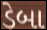
ડેબા